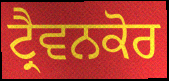
ਟ੍ਰੈਵਨਕੋਰ